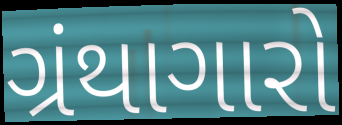
ગ્રંથાગારો